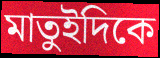
মাতুইদিকে